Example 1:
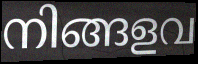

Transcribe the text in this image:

നിങ്ങളവ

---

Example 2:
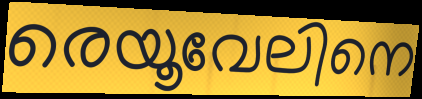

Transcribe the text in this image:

രെയൂവേലിനെ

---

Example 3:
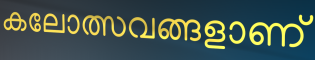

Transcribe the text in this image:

കലോത്സവങ്ങളാണ്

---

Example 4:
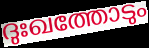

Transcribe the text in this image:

ദുഃഖത്തോടും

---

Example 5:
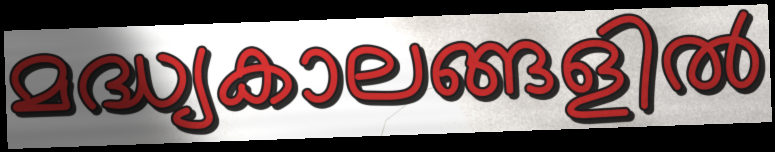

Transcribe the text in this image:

മദ്ധ്യകാലങ്ങളിൽ